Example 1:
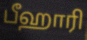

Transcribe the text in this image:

பீஹாரி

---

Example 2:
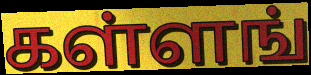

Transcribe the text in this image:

கள்ளங்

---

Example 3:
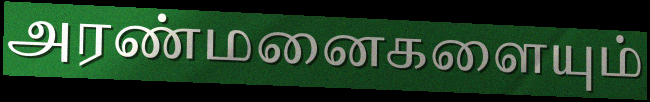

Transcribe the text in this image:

அரண்மனைகளையும்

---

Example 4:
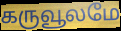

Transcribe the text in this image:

கருவூலமே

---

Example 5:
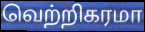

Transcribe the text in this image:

வெற்றிகரமா